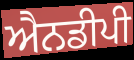
ਐਨਡੀਪੀ